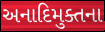
અનાદિમુક્તના